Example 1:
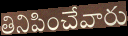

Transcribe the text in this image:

తినిపించేవారు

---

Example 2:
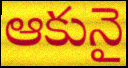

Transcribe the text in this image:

ఆకునై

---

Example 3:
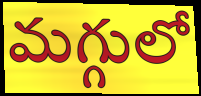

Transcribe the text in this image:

మగ్గులో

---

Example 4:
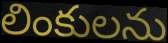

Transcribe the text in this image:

లింకులను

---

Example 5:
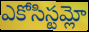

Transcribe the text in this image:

ఎకోసిస్టమ్లో